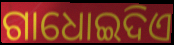
ଗାଧୋଇଦିଏ